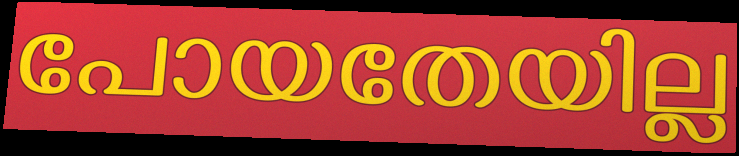
പോയതേയില്ല